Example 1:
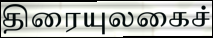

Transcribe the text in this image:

திரையுலகைச்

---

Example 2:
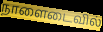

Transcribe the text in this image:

நாளைடைவில்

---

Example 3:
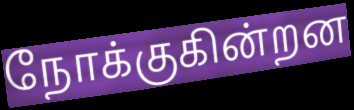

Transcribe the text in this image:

நோக்குகின்றன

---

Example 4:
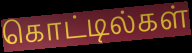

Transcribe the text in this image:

கொட்டில்கள்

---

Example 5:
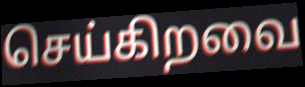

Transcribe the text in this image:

செய்கிறவை